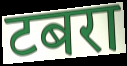
टबरा